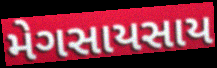
મેગસાયસાય